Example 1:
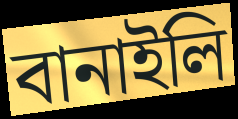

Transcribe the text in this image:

বানাইলি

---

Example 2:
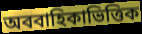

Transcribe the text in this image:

অববাহিকাভিত্তিক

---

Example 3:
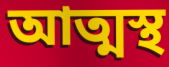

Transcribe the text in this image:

আত্মস্থ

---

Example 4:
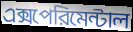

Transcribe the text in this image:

এক্সপেরিমেন্টাল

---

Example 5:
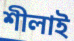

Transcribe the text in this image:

শীলাই